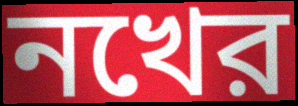
নখের